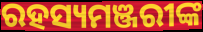
ରହସ୍ୟମଞ୍ଜରୀଙ୍କ